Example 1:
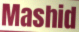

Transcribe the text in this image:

Mashid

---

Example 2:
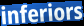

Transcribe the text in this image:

inferiors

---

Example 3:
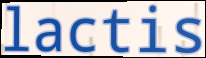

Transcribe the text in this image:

lactis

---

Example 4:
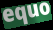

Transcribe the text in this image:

equo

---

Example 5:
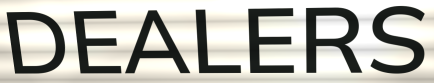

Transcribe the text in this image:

DEALERS